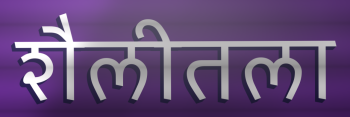
शैलीतला